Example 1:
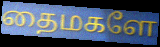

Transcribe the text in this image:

தைமகளே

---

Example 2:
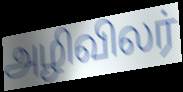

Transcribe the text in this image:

அழிவிலர்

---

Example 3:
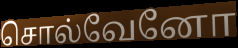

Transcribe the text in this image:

சொல்வேனோ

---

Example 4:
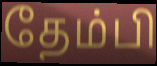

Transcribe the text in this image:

தேம்பி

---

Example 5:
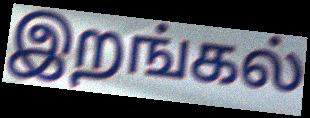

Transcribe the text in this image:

இறங்கல்